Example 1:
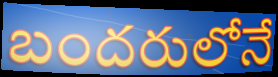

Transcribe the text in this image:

బందరులోనే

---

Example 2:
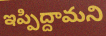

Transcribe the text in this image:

ఇప్పిద్దామని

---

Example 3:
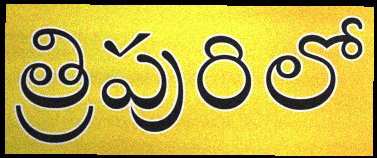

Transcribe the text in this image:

త్రిపురిలో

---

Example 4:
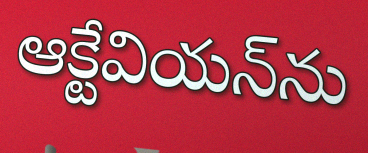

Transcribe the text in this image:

ఆక్టేవియన్‌ను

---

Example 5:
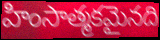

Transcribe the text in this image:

హింసాత్మకమైనది